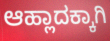
ಆಹ್ಲಾದಕ್ಕಾಗಿ